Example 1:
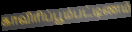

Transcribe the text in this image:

காவிரிப்பூம்பட்டிணம்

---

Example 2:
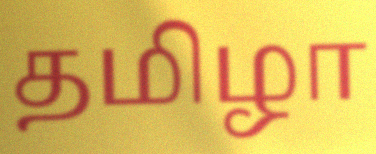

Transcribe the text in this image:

தமிழா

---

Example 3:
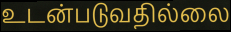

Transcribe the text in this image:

உடன்படுவதில்லை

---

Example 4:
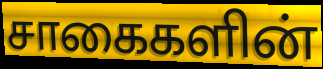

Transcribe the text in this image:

சாகைகளின்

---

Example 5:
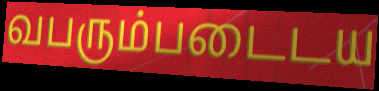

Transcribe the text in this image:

வபரும்படைடய